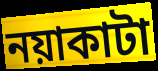
নয়াকাটা